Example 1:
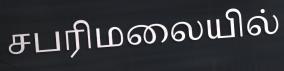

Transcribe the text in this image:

சபரிமலையில்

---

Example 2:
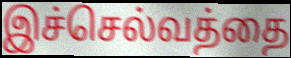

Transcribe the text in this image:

இச்செல்வத்தை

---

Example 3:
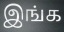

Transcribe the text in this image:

இங்க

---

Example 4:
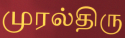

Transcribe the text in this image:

முரல்திரு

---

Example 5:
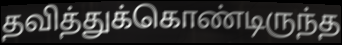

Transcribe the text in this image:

தவித்துக்கொண்டிருந்த